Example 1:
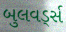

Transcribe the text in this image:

બુલવર્ડ્સ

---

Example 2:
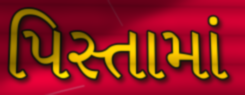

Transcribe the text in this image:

પિસ્તામાં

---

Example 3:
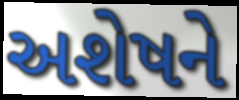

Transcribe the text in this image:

અશેષને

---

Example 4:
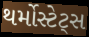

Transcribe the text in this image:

થર્મોસ્ટેટ્સ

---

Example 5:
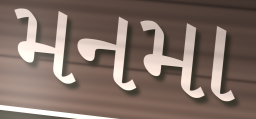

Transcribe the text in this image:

મનમા